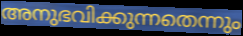
അനുഭവിക്കുന്നതെന്നും